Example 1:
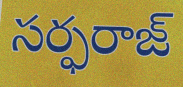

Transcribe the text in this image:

సర్ఫరాజ్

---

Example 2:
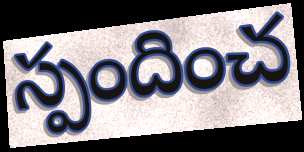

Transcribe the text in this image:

స్పందించ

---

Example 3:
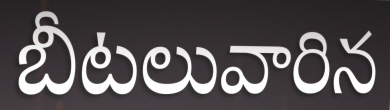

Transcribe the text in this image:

బీటలువారిన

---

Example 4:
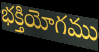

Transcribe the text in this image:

భక్తియోగము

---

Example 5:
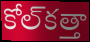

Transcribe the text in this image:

కోల్‌కత్తా